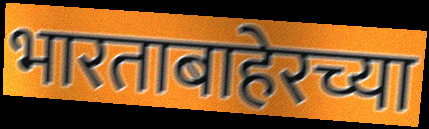
भारताबाहेरच्या